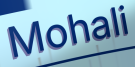
Mohali